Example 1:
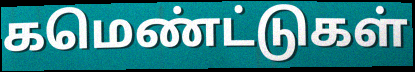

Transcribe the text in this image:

கமெண்ட்டுகள்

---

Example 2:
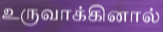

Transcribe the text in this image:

உருவாக்கினால்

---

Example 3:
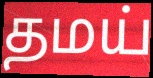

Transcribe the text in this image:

தமய்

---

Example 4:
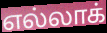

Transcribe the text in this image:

எல்லாக்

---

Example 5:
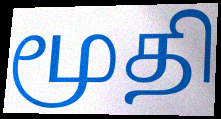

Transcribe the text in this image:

மூதி